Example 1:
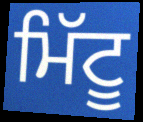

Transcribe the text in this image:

ਮਿੱਟੂ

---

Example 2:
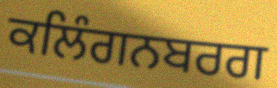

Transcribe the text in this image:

ਕਲਿੰਗਨਬਰਗ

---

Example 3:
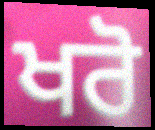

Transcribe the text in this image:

ਖਰੋ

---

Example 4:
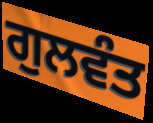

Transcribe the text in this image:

ਗੁਲਵੰਤ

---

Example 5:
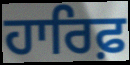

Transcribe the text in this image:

ਹਾਰਿਫ਼